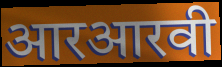
आरआरवी